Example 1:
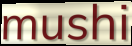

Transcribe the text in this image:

mushi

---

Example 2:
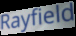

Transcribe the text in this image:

Rayfield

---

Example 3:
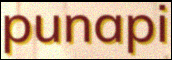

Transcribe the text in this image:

punapi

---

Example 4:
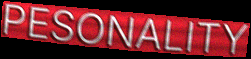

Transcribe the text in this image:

PESONALITY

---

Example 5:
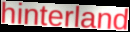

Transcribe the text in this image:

hinterland